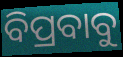
ବିପ୍ରବାବୁ